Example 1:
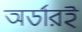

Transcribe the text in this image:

অর্ডারই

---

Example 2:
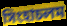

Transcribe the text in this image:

সিংহাচলম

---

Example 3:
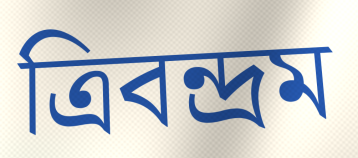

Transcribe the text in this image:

ত্রিবন্দ্রম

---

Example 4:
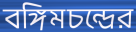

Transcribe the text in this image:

বঙ্গিমচন্দ্রের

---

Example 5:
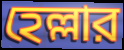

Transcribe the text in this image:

হেল্লার